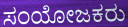
ಸಂಯೋಜಕರು